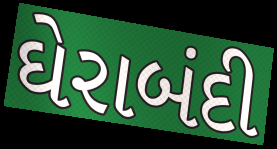
ઘેરાબંદી